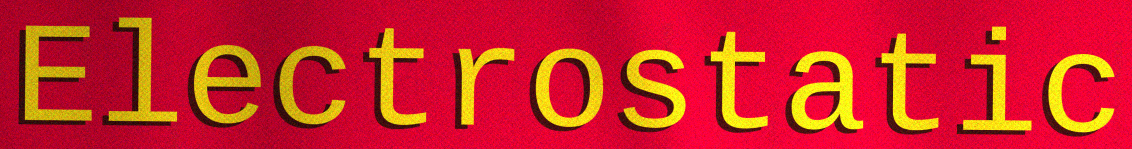
Electrostatic